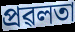
প্ৰৱলতা